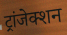
ट्रांजेक्शन